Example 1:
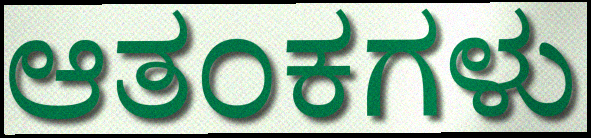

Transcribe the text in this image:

ಆತಂಕಗಳು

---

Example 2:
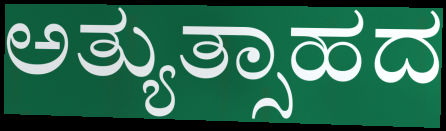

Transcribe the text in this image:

ಅತ್ಯುತ್ಸಾಹದ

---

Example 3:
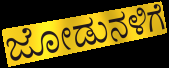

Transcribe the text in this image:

ಜೋಡುನಳಿಗೆ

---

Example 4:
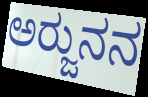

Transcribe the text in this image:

ಅರ್‍ಜುನನ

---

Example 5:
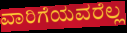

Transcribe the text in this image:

ವಾರಿಗೆಯವರೆಲ್ಲ